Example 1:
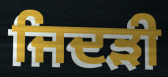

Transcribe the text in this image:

ਜਿਦੜੀ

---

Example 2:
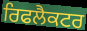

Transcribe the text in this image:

ਰਿਫਲੈਕਟਰ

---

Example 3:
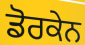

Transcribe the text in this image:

ਡੋਰਕੇਨ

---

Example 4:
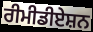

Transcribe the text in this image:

ਰੀਮੀਡੀਏਸ਼ਨ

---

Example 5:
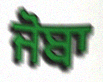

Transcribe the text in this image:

ਜੋਬਾ